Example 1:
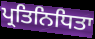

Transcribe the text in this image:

ਪ੍ਰਤਿਨਿਧਿਤਾ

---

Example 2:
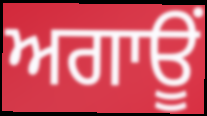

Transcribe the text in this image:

ਅਗਾਊਂ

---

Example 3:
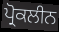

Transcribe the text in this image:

ਪ੍ਰੋਕਲੀਨ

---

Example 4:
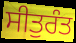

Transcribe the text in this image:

ਸੀਤੁਰੰਤ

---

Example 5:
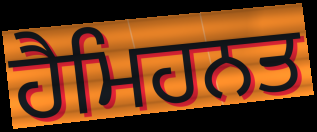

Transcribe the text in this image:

ਹੈਮਿਹਨਤ